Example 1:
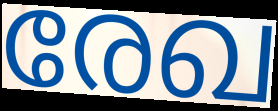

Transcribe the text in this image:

രേഖ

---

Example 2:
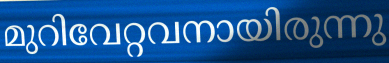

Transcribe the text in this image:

മുറിവേറ്റവനായിരുന്നു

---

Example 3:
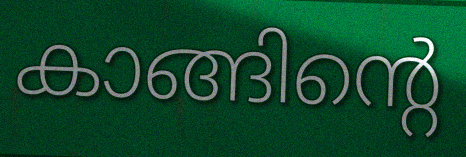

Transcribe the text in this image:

കാങ്ങിന്റെ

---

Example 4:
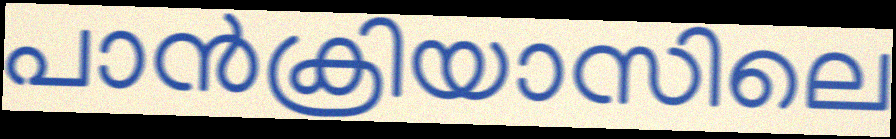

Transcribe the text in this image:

പാൻക്രിയാസിലെ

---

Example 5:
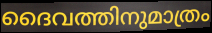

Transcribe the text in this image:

ദൈവത്തിനുമാത്രം